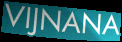
VIJNANA